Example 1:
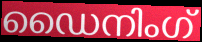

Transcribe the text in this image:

ഡൈനിംഗ്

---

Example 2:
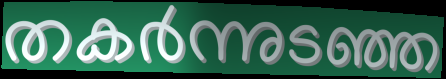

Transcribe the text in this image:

തകർന്നുടഞ്ഞ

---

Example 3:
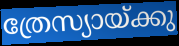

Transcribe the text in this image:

ത്രേസ്യായ്ക്കു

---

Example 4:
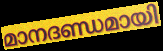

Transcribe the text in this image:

മാനദണ്ഡമായി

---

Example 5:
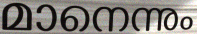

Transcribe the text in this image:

മാനെന്നും